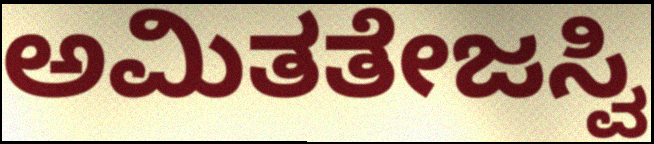
ಅಮಿತತೇಜಸ್ವಿ